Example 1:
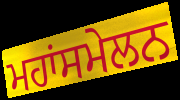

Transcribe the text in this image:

ਮਹਾਂਸਮੇਲਨ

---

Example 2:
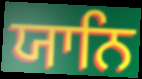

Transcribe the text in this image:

ਯਾਨਿ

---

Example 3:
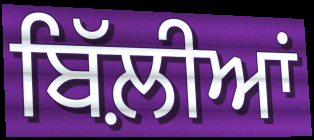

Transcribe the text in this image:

ਬਿੱਲ਼ੀਆਂ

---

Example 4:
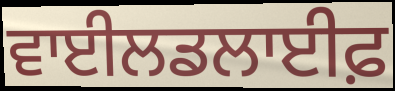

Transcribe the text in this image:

ਵਾਈਲਡਲਾਈਫ਼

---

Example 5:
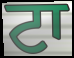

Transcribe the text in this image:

ਟਾ